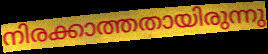
നിരക്കാത്തതായിരുന്നു